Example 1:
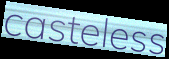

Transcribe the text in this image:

casteless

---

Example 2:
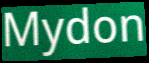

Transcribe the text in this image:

Mydon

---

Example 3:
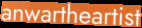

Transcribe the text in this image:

anwartheartist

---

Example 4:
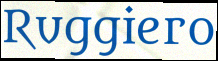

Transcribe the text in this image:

Ruggiero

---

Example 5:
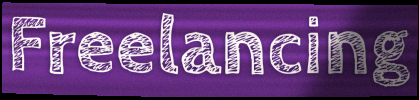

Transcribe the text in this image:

Freelancing